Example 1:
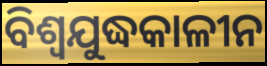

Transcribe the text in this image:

ବିଶ୍ୱଯୁଦ୍ଧକାଳୀନ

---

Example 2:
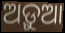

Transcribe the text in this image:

ଅଡ଼ୁଆ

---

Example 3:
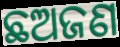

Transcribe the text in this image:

ଛଅଜଣ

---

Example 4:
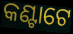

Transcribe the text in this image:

କଣ୍ଟାଟେ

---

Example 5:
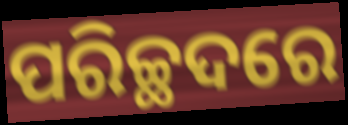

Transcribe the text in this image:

ପରିଚ୍ଛଦରେ